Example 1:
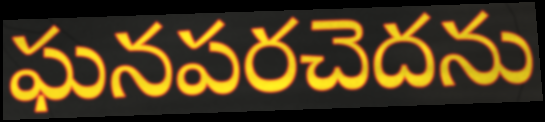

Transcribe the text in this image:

ఘనపరచెదను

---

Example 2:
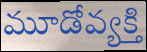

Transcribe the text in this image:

మూడోవ్యక్తి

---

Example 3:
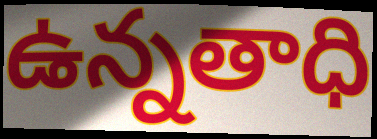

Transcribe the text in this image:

ఉన్నతాధి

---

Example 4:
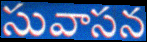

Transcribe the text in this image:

సువాసన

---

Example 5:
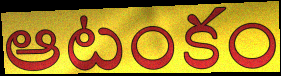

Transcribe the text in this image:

ఆటంకం